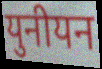
युनीयन